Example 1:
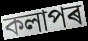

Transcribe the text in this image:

কলাপৰ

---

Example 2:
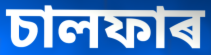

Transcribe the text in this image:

চালফাৰ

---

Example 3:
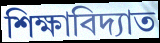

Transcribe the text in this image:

শিক্ষাবিদ্যাত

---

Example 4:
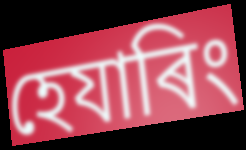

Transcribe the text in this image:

হেযাৰিং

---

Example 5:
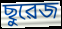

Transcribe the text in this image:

ছুৱেজ